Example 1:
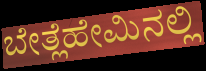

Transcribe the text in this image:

ಬೇತ್ಲೆಹೇಮಿನಲ್ಲಿ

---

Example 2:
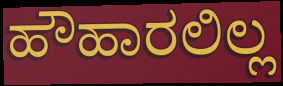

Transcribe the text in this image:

ಹೌಹಾರಲಿಲ್ಲ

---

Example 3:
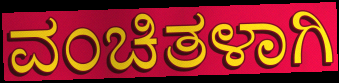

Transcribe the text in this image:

ವಂಚಿತಳಾಗಿ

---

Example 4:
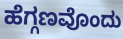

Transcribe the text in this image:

ಹೆಗ್ಗಣವೊಂದು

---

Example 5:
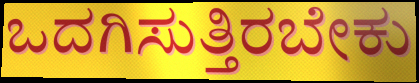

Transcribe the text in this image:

ಒದಗಿಸುತ್ತಿರಬೇಕು